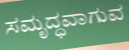
ಸಮೃದ್ಧವಾಗುವ